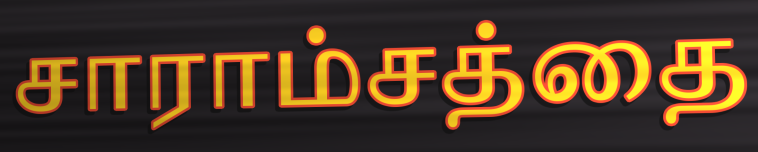
சாராம்சத்தை